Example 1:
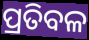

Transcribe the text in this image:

ପ୍ରତିବଳ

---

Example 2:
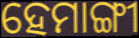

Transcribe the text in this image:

ହେମାଙ୍ଗୀ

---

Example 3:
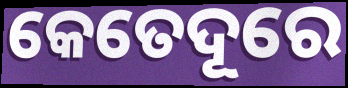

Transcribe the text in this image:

କେତେଦୂରେ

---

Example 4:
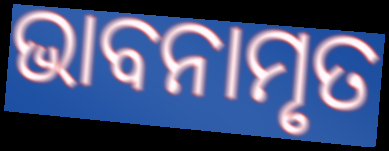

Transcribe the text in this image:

ଭାବନାମୃତ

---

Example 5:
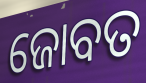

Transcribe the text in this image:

ଜୋବତ